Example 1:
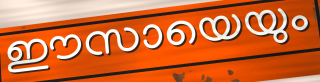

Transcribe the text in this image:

ഈസായെയും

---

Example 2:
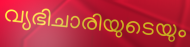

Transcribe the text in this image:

വ്യഭിചാരിയുടെയും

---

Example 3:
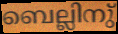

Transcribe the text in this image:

ബെല്ലിനു്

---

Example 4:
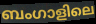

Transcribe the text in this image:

ബംഗാളിലെ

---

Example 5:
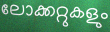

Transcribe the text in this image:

ലോക്കറ്റുകളും